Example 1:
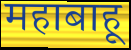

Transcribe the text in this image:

महाबाहू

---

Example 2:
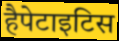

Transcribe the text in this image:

हैपेटाइटिस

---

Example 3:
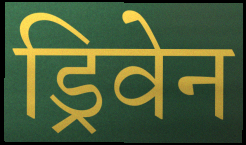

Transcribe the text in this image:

ड्रिवेन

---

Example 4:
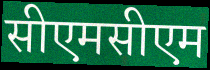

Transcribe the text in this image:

सीएमसीएम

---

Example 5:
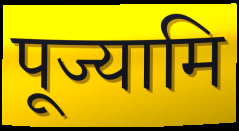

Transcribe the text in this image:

पूज्यामि